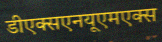
डीएक्सएनयूएमएक्स